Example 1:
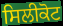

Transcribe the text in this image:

ਸਿਲੀਕੋਟ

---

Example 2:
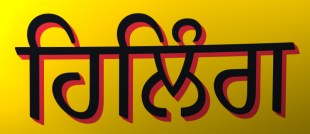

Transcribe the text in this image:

ਹਿਲਿੰਗ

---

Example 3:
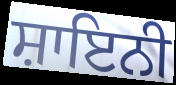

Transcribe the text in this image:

ਸ਼ਾਇਨੀ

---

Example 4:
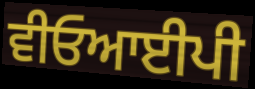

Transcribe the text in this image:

ਵੀਓਆਈਪੀ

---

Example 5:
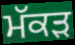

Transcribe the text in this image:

ਮੱਕੜ